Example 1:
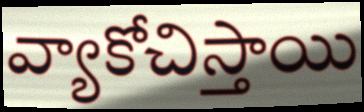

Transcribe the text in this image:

వ్యాకోచిస్తాయి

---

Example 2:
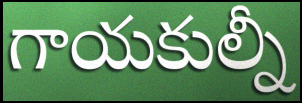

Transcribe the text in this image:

గాయకుల్నీ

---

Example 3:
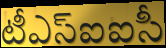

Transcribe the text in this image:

టీఎస్ఐఐసీ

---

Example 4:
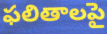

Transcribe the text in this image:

ఫలితాలపై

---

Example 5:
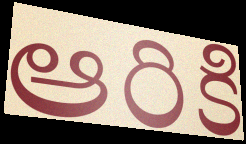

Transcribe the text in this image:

ఆరికి